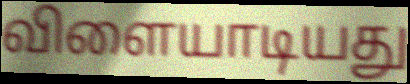
விளையாடியது